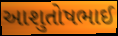
આશુતોષભાઈ